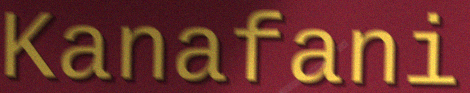
Kanafani